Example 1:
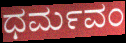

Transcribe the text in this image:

ಧರ್ಮವಂ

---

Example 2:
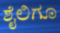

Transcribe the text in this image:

ಶೈಲಿಗೂ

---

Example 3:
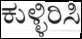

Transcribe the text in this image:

ಕುಳ್ಳಿರಿಸಿ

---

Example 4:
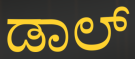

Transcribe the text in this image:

ಡಾಲ್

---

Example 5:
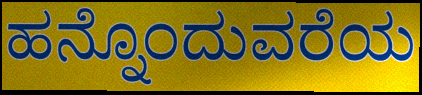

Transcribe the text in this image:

ಹನ್ನೊಂದುವರೆಯ